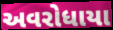
અવરોધાયા